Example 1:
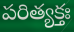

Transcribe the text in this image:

పరిత్యక్తః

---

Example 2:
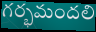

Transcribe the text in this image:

గర్భమందలి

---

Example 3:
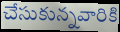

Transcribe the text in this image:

చేసుకున్నవారికి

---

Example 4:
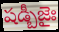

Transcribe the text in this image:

షడ్బీజైః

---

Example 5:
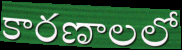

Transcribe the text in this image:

కారణాలలో